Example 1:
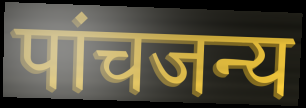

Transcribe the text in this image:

पांचजन्य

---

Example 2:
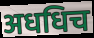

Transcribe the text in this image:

अधधिच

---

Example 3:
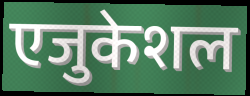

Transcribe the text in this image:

एजुकेशल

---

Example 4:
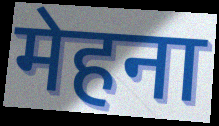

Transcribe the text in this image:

मेहना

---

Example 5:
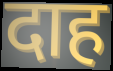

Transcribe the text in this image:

दाह